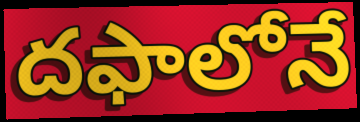
దఫాలోనే